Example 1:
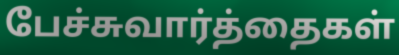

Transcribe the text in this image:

பேச்சுவார்த்தைகள்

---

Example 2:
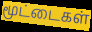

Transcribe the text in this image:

மூட்டைகள்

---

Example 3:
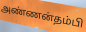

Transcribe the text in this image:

அண்ணன்தம்பி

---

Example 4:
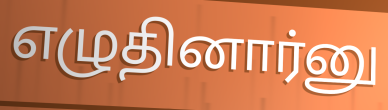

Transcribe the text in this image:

எழுதினார்னு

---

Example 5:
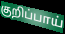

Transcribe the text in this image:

குறிப்பாய்